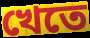
খেতে